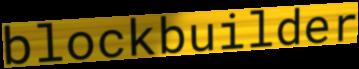
blockbuilder